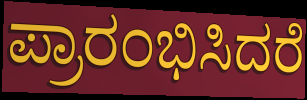
ಪ್ರಾರಂಭಿಸಿದರೆ